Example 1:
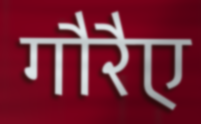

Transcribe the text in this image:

गौरैए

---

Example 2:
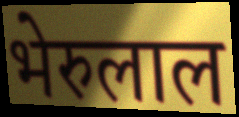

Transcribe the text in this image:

भेरुलाल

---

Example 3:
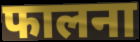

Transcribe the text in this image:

फालना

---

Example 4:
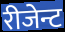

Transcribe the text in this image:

रीजेन्ट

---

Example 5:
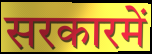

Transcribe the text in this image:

सरकारमें